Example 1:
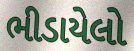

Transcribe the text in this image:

ભીડાયેલો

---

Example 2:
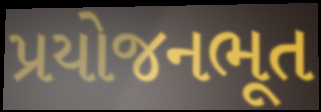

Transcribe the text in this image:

પ્રયોજનભૂત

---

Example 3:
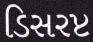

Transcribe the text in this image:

ડિસરપ્ટ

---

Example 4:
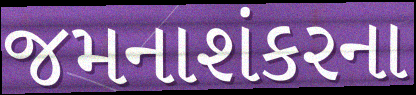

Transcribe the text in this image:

જમનાશંકરના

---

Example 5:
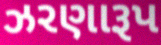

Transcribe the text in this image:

ઝરણારૂપ